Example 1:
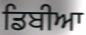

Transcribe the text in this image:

ਡਿਬੀਆ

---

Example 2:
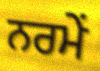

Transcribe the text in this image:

ਨਰਮੇਂ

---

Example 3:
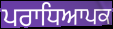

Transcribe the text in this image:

ਪਰਾਧਿਆਪਕ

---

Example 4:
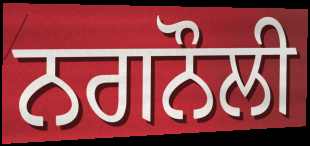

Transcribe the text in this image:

ਨਗਨੌਲੀ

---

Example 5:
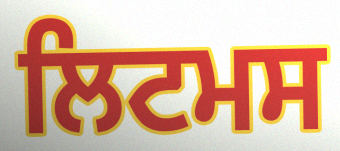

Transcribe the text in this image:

ਲਿਟਮਸ